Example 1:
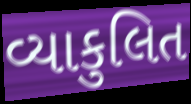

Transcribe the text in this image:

વ્યાકુલિત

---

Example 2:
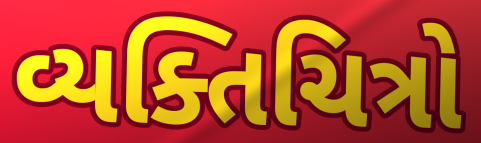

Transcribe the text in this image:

વ્યક્તિચિત્રો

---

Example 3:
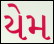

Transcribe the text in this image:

યેમ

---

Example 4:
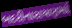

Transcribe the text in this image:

બદરીનારાયણમાં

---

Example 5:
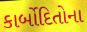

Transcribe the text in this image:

કાર્બોદિતોના